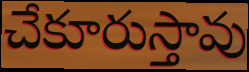
చేకూరుస్తావు